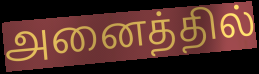
அனைத்தில்